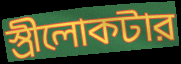
স্ত্রীলোকটার